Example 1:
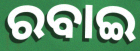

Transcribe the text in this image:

ରବାଇ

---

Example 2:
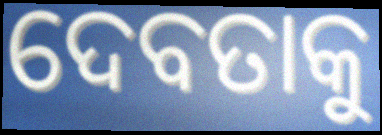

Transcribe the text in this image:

ଦେବତାକୁ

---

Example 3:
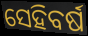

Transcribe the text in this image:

ସେହିବର୍ଷ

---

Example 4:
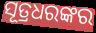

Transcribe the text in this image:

ସୂତ୍ରଧରଙ୍କର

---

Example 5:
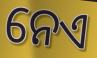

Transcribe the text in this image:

ନେଏ